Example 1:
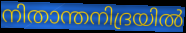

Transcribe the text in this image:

നിതാന്തനിദ്രയിൽ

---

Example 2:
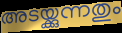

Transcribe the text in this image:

അടയ്ക്കുന്നതും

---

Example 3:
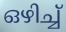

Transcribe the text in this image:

ഒഴിച്ച്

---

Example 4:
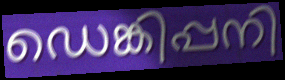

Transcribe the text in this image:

ഡെങ്കിപ്പനി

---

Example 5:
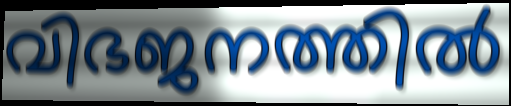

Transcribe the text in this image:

വിഭജനത്തിൽ